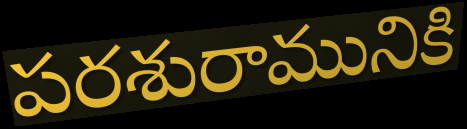
పరశురామునికి